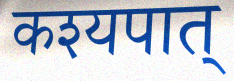
कश्यपात्